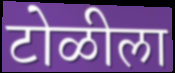
टोळीला